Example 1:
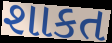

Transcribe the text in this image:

શાકત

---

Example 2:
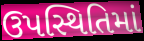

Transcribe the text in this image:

ઉપસ્થિતિમાં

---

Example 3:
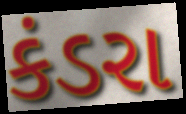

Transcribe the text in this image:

કંડરા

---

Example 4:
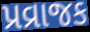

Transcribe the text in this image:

પ્રવ્રાજક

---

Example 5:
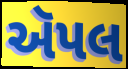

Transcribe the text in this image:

ઍપલ